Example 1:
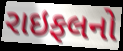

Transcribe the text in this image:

રાઇફલનો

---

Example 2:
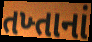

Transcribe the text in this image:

તખ્તાનાં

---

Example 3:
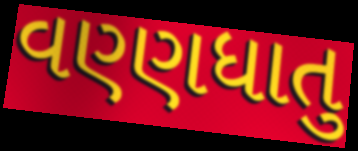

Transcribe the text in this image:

વણ્ણધાતુ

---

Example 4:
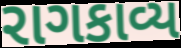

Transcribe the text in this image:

રાગકાવ્ય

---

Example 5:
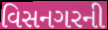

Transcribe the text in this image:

વિસનગરની